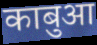
काबुआ